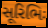
સૂરિભિઃ